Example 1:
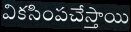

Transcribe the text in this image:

వికసింపచేస్తాయి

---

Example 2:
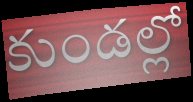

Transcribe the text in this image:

కుండల్లో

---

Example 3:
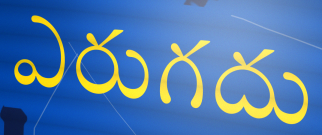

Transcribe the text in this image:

ఎరుగదు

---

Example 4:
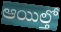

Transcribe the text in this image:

ఆయిల్తో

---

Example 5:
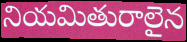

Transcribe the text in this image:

నియమితురాలైన